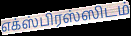
எக்ஸ்பிரஸ்ஸிடம்